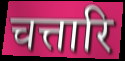
चत्तारि